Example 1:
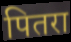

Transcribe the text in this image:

पितरा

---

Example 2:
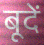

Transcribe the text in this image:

बूदें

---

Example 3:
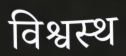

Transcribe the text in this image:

विश्वस्थ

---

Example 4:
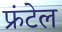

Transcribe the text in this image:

फ्रंटेल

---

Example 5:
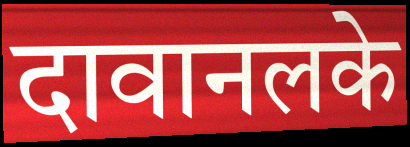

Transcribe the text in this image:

दावानलके